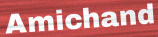
Amichand